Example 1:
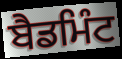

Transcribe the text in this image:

ਬੈਡਮਿੰਟ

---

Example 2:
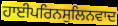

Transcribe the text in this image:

ਹਾਈਪਰਿਨਸੁਲਿਨਵਾਦ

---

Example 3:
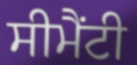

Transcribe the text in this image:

ਸੀਮੈਂਟੀ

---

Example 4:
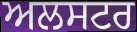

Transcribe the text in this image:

ਅਲਸਟਰ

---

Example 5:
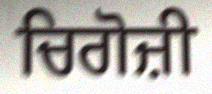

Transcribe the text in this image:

ਚਿਗੋਜ਼ੀ